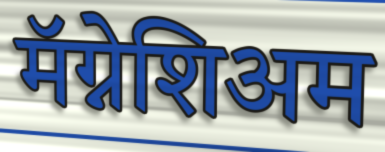
मॅग्नेशिअम